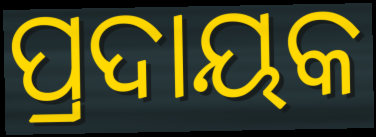
ପ୍ରଦାୟକ